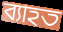
ব্যাহত